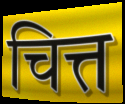
चित्त